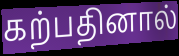
கற்பதினால்